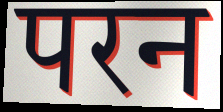
परन